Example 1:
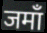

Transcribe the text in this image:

जमाँ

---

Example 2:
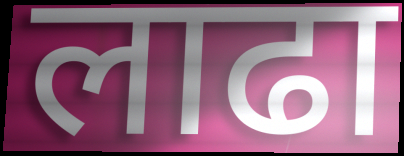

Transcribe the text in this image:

लाढा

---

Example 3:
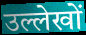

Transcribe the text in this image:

उल्लेखों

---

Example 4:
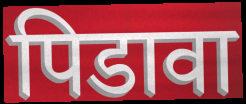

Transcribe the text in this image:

पिडावा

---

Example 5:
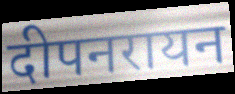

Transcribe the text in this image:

दीपनरायन